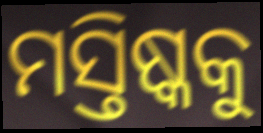
ମସ୍ତିଷ୍କକୁ